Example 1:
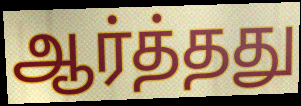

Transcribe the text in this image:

ஆர்த்தது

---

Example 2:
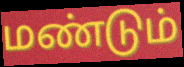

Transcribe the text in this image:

மண்டும்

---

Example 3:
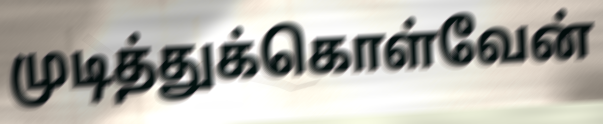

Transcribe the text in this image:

முடித்துக்கொள்வேன்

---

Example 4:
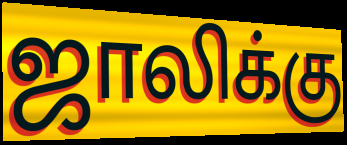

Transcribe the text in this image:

ஜாலிக்கு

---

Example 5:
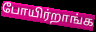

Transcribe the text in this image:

போயிர்றாங்க